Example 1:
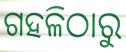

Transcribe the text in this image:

ଗହଳିଠାରୁ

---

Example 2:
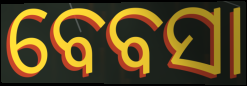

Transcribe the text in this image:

ବେବସା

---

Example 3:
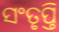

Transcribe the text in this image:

ସଂତୃପ୍ତି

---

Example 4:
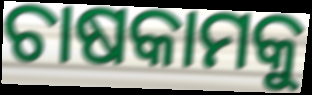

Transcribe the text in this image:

ଚାଷକାମକୁ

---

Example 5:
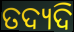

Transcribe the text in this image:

ତଦ୍ୟଦି